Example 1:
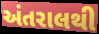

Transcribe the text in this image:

અંતરાલથી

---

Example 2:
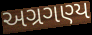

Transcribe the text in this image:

અગ્રગણ્ય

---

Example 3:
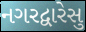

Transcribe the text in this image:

નગરદ્વારેસુ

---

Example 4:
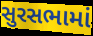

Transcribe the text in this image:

સુરસભામાં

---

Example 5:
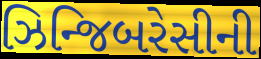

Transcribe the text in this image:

ઝિન્જિબરેસીની